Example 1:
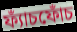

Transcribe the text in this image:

ফ্যাঁচফোঁচ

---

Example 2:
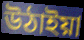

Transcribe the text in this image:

উঠাইয়া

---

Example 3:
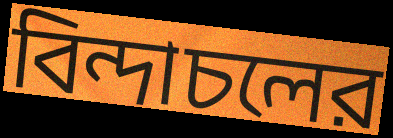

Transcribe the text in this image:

বিন্দাচলের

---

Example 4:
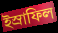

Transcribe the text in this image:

ইস্রাফিল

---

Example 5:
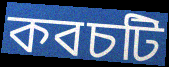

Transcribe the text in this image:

কবচটি